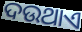
ଦଉଥାଏ